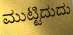
ಮುಟ್ಟಿದುದು